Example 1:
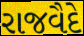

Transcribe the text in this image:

રાજવૈદે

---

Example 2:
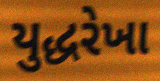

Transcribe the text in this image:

યુદ્ધરેખા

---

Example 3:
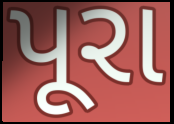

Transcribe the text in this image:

પૂરા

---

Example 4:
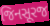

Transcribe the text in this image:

જિનસૂરજ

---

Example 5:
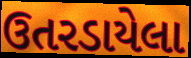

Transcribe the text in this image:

ઉતરડાયેલા